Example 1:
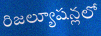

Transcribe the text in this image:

రిజల్యూషన్లలో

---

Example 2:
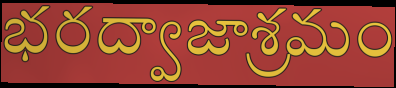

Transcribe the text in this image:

భరద్వాజాశ్రమం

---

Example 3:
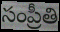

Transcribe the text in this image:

సంప్రీతి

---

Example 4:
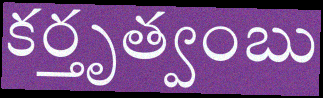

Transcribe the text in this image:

కర్తృత్వంబు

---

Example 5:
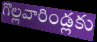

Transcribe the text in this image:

గొల్లవారిండ్లకు